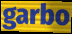
garbo